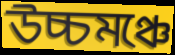
উচ্চমঞ্চে